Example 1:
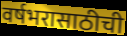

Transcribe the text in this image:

वर्षभरासाठीची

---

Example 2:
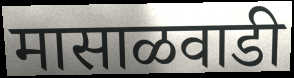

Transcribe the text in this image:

मासाळवाडी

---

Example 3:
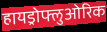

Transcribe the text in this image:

हायड्रोफ्लुओरिक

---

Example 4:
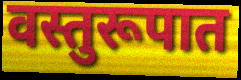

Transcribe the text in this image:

वस्तुरूपात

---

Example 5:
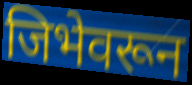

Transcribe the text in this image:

जिभेवरून